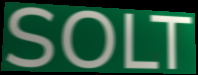
SOLT